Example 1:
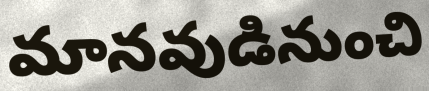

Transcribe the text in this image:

మానవుడినుంచి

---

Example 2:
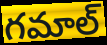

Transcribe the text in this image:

గమాల్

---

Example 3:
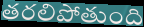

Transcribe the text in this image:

తరలిపోతుంది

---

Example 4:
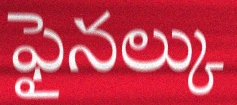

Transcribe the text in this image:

ఫైనల్కు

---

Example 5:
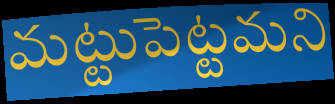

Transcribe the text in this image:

మట్టుపెట్టమని